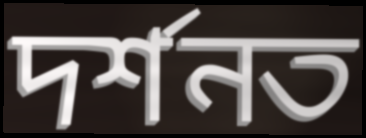
দৰ্শনত